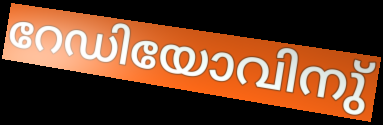
റേഡിയോവിനു്